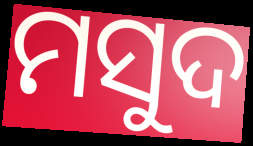
ମସୁଦ